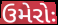
ઉમેરોઃ